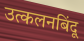
उत्कलनबिंदू